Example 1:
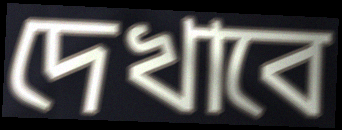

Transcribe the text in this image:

দেখাবে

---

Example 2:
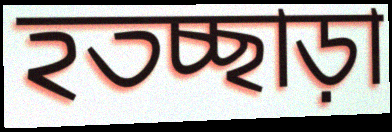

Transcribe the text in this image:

হতচ্ছাড়া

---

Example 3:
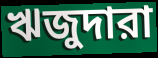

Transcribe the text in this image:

ঋজুদারা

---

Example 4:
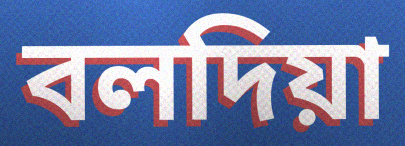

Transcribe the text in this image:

বলদিয়া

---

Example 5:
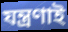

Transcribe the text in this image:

যন্ত্রণাই